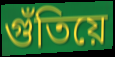
গুঁতিয়ে